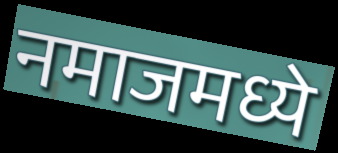
नमाजमध्ये